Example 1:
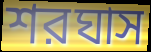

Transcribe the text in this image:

শরঘাস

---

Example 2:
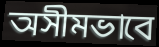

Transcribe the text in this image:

অসীমভাবে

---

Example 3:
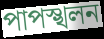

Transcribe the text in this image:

পাপস্খলন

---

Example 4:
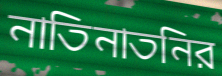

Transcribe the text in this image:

নাতিনাতনির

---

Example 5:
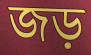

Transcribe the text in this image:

জড়